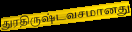
துரதிருஷ்டவசமானது